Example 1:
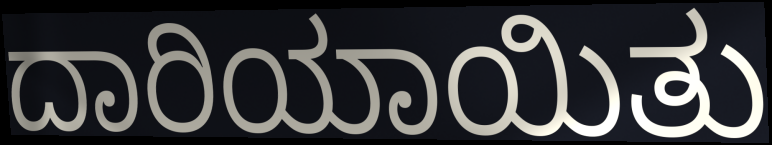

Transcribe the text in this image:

ದಾರಿಯಾಯಿತು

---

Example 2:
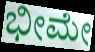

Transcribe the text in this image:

ಭೀಮೇ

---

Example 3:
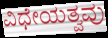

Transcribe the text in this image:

ವಿಧೇಯತ್ವವು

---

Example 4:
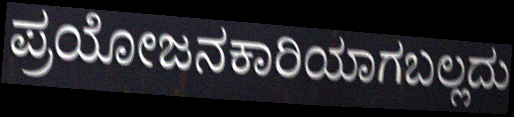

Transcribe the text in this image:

ಪ್ರಯೋಜನಕಾರಿಯಾಗಬಲ್ಲದು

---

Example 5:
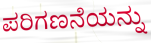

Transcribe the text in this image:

ಪರಿಗಣನೆಯನ್ನು